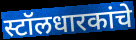
स्टॉलधारकांचे